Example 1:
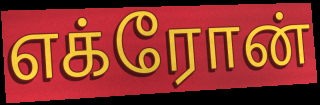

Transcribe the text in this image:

எக்ரோன்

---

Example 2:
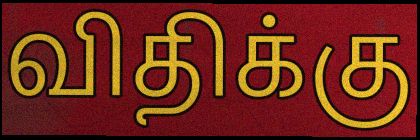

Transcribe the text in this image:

விதிக்கு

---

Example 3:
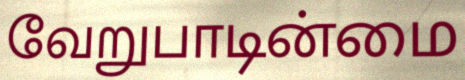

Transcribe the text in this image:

வேறுபாடின்மை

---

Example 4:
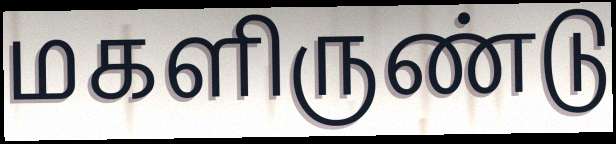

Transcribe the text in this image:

மகளிருண்டு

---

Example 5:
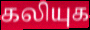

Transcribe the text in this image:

கலியுக